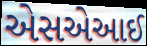
એસએઆઈ